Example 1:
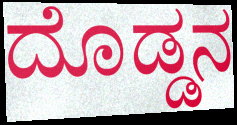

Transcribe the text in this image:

ದೊಡ್ಡನ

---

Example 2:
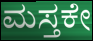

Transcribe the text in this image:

ಮಸ್ತಕೇ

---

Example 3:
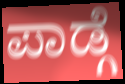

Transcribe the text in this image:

ಪಾಡ್ಗೆ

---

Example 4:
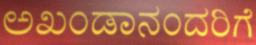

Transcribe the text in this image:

ಅಖಂಡಾನಂದರಿಗೆ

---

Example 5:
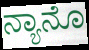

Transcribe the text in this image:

ನ್ಯಾನೊ